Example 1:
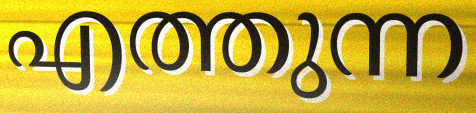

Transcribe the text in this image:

എത്തുന്ന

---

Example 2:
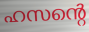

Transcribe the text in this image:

ഹസന്റെ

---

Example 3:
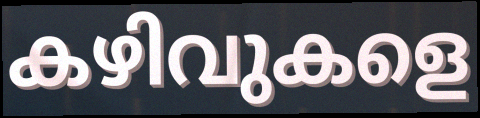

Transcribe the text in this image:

കഴിവുകളെ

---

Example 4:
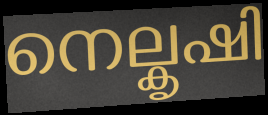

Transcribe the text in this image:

നെല്കൃഷി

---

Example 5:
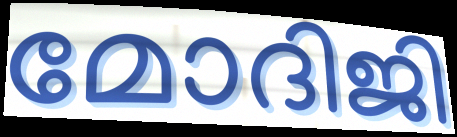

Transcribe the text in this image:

മോദിജി